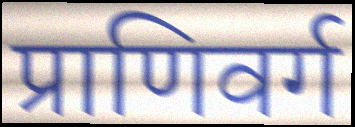
प्राणिवर्ग